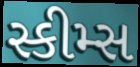
સ્કીમ્સ